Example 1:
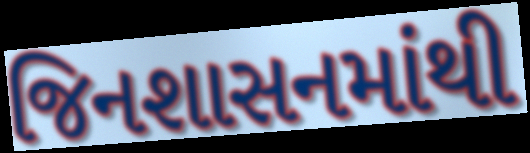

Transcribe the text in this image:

જિનશાસનમાંથી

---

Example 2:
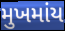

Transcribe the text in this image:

મુખમાંય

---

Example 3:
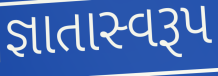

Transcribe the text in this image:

જ્ઞાતાસ્વરૂપ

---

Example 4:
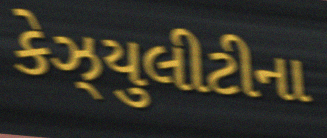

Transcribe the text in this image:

કેઝ્યુલીટીના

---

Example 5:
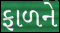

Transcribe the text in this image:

ફાળને